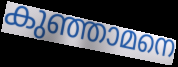
കുഞ്ഞാമനെ